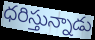
ధరిస్తున్నాడు